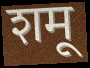
शमू